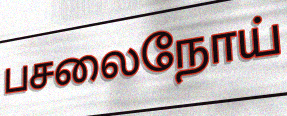
பசலைநோய்